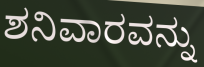
ಶನಿವಾರವನ್ನು